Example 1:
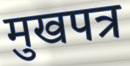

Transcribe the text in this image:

मुखपत्र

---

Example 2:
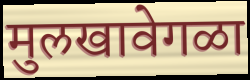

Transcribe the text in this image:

मुलखावेगळा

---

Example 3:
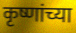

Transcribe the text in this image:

कृष्णांच्या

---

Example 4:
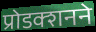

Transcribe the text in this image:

प्रोडक्शनने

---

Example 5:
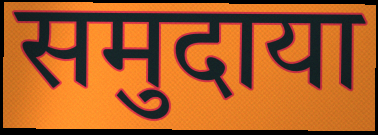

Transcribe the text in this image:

समुदाया